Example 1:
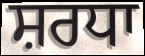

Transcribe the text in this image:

ਸ਼ਰਧਾ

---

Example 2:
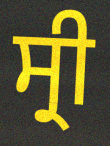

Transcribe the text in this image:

ਸ੍ਰੀ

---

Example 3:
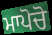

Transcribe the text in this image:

ਮਾਪੋਚੋ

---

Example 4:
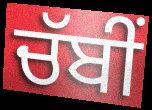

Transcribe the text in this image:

ਚੱਬੀਂ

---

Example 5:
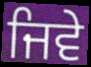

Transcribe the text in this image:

ਜਿਵੇ